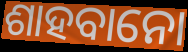
ଶାହବାନୋ